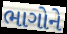
ભાગોને